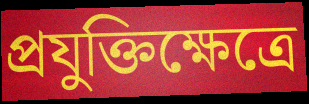
প্রযুক্তিক্ষেত্রে